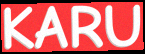
KARU